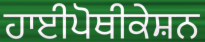
ਹਾਈਪੋਥੀਕੇਸ਼ਨ